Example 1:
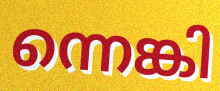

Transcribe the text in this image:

ന്നെങ്കി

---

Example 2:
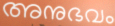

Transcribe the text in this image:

അനുഭവം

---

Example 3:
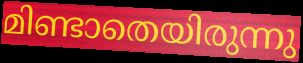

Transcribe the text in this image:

മിണ്ടാതെയിരുന്നു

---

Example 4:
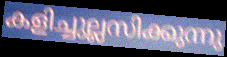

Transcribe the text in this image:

കളിച്ചുല്ലസിക്കുന്നു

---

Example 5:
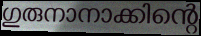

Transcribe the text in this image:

ഗുരുനാനാക്കിന്റെ